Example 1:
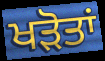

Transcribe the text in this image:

ਖੜੋਤਾਂ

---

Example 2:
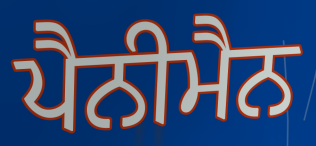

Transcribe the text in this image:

ਪੈਨੀਮੈਨ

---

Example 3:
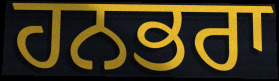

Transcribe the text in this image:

ਹਨਭਰਾ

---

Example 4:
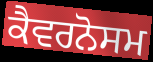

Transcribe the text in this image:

ਕੈਵਰਨੋਸਮ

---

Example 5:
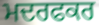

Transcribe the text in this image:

ਮਦਰਫਕਰ